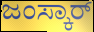
ಜಂಸ್ಕಾರ್